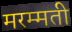
मरम्मती